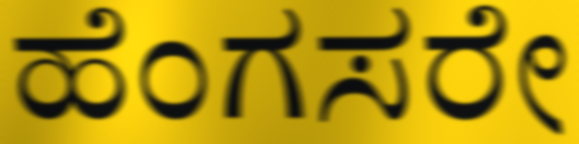
ಹೆಂಗಸರೇ